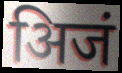
अिजं